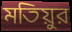
মতিয়ুর